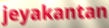
jeyakantan